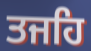
ਤਜਹਿ